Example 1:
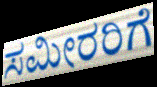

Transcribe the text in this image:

ಸಮೀರರಿಗೆ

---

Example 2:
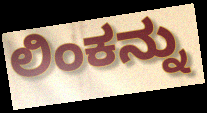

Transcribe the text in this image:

ಲಿಂಕನ್ನು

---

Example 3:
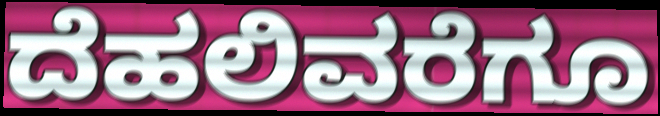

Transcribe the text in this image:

ದೆಹಲಿವರೆಗೂ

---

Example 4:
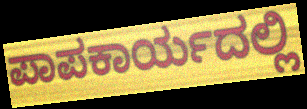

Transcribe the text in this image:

ಪಾಪಕಾರ್ಯದಲ್ಲಿ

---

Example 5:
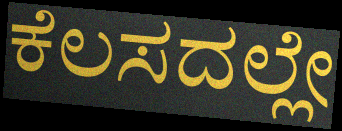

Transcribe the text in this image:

ಕೆಲಸದಲ್ಲೇ